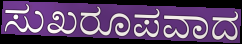
ಸುಖರೂಪವಾದ